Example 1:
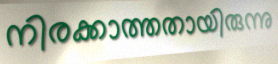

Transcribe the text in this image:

നിരക്കാത്തതായിരുന്നു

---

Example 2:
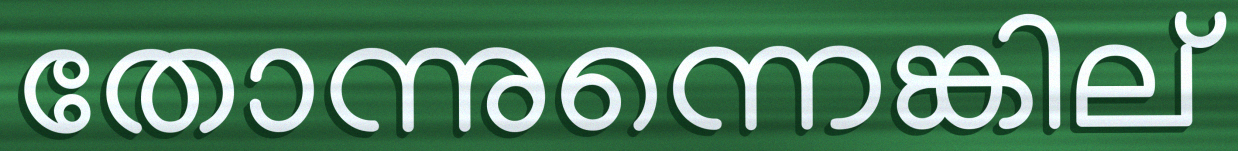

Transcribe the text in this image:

തോന്നുന്നെങ്കില്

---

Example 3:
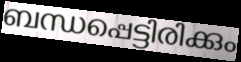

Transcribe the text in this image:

ബന്ധപ്പെട്ടിരിക്കും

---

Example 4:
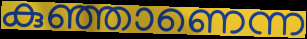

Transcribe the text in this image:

കുഞ്ഞാണെന്ന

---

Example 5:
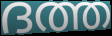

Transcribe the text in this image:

ദത്ത